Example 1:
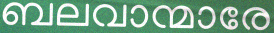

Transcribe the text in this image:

ബലവാന്മാരേ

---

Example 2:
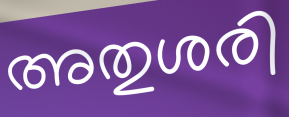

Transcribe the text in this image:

അതുശരി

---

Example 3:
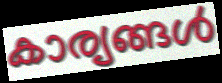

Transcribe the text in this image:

കാര്യങ്ങൾ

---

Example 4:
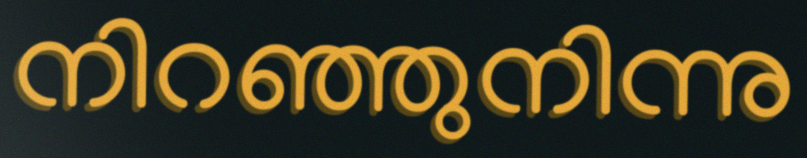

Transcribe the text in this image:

നിറഞ്ഞുനിന്നു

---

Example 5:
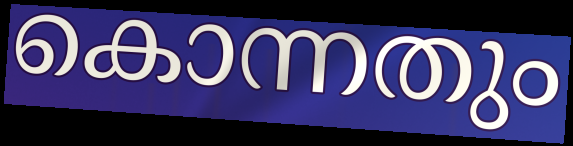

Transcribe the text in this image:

കൊന്നതും